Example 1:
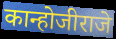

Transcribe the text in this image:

कान्होजीराजे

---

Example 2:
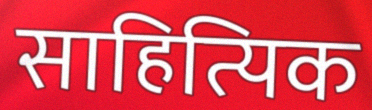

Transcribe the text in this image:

साहित्यिक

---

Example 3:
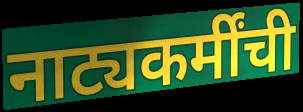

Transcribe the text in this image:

नाट्यकर्मींची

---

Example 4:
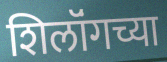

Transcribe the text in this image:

शिलॉंगच्या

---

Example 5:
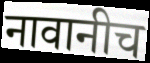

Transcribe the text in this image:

नावानीच